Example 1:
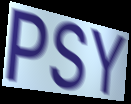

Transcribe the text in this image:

PSY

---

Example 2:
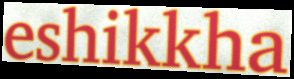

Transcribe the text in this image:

eshikkha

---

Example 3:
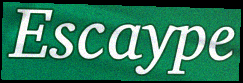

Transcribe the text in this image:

Escaype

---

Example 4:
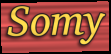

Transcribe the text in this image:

Somy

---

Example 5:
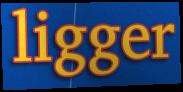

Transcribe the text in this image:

ligger